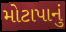
મોટાપાનું